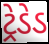
ટ્રેડેડ